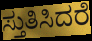
ಸ್ತುತಿಸಿದರೆ